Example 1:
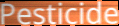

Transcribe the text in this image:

Pesticide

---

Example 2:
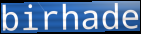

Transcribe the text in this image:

birhade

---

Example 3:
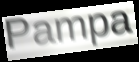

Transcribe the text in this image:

Pampa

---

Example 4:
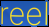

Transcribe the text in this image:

reel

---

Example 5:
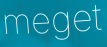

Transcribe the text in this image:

meget